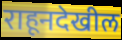
राहूनदेखील